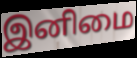
இனிமை